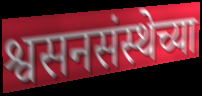
श्वसनसंस्थेच्या